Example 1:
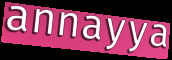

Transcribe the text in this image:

annayya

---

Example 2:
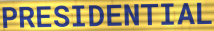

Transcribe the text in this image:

PRESIDENTIAL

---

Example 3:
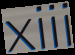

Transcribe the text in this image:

xiii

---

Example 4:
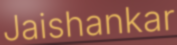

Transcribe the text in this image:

Jaishankar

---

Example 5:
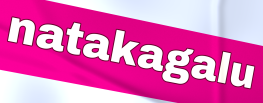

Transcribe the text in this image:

natakagalu